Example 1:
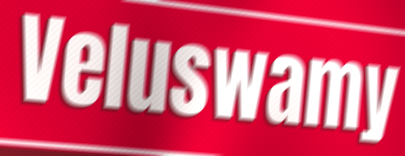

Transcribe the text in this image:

Veluswamy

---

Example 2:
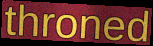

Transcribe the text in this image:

throned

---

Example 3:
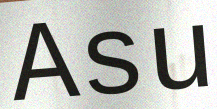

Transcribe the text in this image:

Asu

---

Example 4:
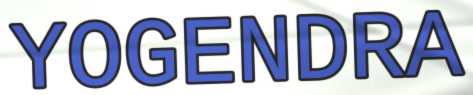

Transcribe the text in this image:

YOGENDRA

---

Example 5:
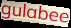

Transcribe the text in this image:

gulabee